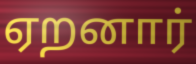
ஏறனார்